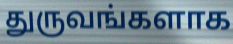
துருவங்களாக